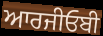
ਆਰਜੀਓਬੀ